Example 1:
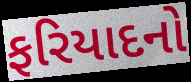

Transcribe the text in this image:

ફરિયાદનો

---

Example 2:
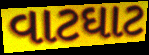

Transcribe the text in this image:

વાટઘાટ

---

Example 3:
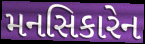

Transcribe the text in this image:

મનસિકારેન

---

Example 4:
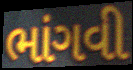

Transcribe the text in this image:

ભાંગવી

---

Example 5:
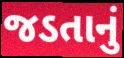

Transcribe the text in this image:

જડતાનું